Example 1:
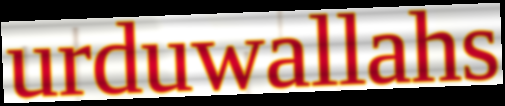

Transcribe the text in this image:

urduwallahs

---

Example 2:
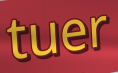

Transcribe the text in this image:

tuer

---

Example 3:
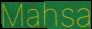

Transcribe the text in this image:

Mahsa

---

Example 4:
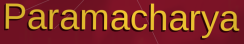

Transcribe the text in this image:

Paramacharya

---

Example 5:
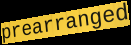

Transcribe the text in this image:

prearranged